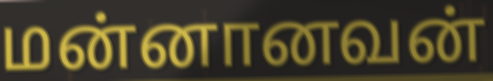
மன்னானவன்